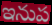
ఇనుప